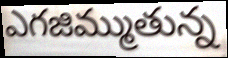
ఎగజిమ్ముతున్న